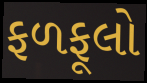
ફળફૂલો